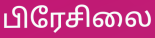
பிரேசிலை